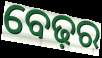
ବେଢ଼ର